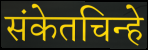
संकेतचिन्हे